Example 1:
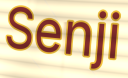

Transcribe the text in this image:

Senji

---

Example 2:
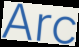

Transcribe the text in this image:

Arc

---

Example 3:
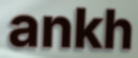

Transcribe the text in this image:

ankh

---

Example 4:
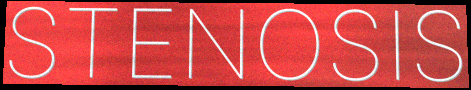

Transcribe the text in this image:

STENOSIS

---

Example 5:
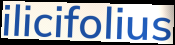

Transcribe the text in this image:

ilicifolius